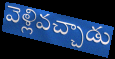
వెళ్లివచ్చాడు